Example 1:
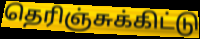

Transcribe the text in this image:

தெரிஞ்சுக்கிட்டு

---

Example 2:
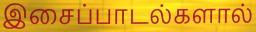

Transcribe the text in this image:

இசைப்பாடல்களால்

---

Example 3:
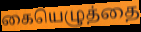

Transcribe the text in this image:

கையெழுத்தை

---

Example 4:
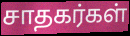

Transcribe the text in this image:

சாதகர்கள்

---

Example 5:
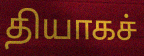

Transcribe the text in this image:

தியாகச்